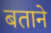
बताने